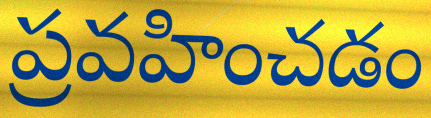
ప్రవహించడం